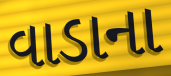
વાડાના